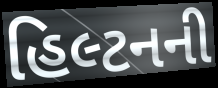
હિલ્ટનની